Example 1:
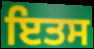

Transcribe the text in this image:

ਇਤਸ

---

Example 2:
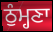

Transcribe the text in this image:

ਠੁੰਮ੍ਹਣਾ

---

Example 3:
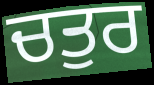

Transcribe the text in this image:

ਚਤੁਰ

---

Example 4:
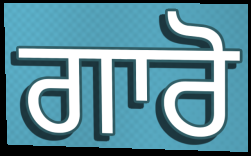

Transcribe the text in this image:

ਗਾਰੋ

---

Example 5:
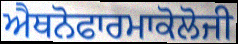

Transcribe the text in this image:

ਐਥਨੋਫਾਰਮਾਕੋਲੋਜੀ